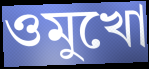
ওমুখো